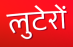
लुटेरों